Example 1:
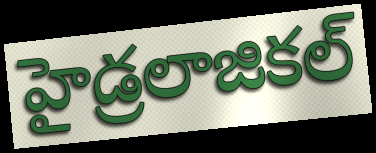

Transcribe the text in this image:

హైడ్రలాజికల్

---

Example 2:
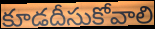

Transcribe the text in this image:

కూడదీసుకోవాలి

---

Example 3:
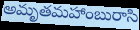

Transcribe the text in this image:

అమృతమహాంబురాసి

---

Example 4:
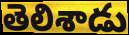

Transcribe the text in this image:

తెలిశాడు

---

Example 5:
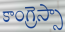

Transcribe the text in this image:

కాంగ్రెస్సా